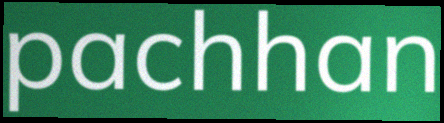
pachhan